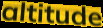
altitude